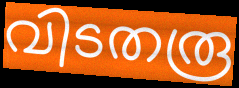
വിടതരൂ